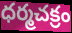
ధర్మచక్రం